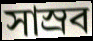
সাস্রব